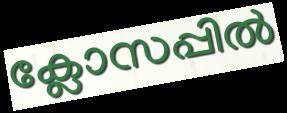
ക്ലോസപ്പിൽ